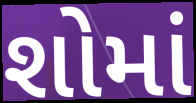
શોમાં